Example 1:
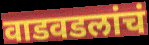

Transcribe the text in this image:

वाडवडलांचं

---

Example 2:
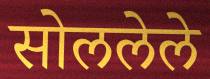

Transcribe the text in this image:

सोललेले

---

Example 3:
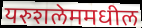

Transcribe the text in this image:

यरुशलेममधील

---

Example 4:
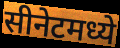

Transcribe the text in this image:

सीनेटमध्ये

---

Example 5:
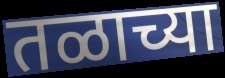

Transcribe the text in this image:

तळाच्या